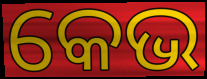
କେଭ